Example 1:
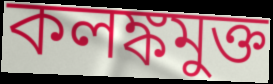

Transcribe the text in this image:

কলঙ্কমুক্ত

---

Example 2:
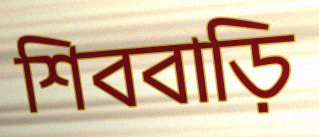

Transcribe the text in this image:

শিববাড়ি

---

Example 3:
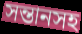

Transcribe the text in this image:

সন্তানসহ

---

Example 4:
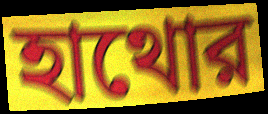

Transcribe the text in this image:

হাথোর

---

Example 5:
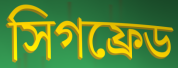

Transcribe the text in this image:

সিগফ্রেড